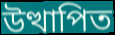
উত্থাপিত